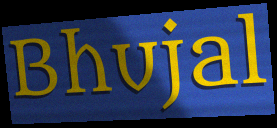
Bhujal